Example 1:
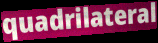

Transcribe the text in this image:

quadrilateral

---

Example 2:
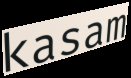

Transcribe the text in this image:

kasam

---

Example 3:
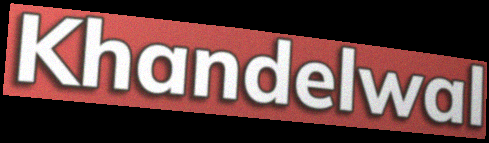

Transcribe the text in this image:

Khandelwal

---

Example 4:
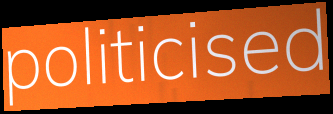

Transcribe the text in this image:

politicised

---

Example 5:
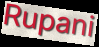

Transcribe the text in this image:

Rupani